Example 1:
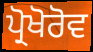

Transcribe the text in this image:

ਪ੍ਰੋਖੋਰੋਵ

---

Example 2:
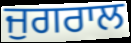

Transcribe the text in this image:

ਜੁਗਰਾਲ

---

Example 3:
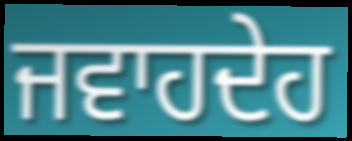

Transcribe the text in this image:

ਜਵਾਹਦੇਹ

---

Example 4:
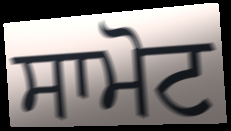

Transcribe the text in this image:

ਸਾਮੋਟ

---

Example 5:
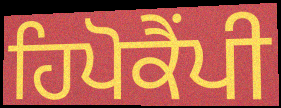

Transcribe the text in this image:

ਹਿਪੋਕੈਂਪੀ